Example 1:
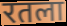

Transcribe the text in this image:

रतला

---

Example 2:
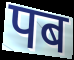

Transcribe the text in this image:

पब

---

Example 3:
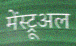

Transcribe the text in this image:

मेंस्ट्रूअल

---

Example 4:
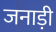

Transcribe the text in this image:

जनाड़ी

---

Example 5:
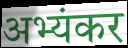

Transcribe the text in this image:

अभ्यंकर